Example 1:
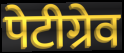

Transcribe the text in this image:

पेटीग्रेव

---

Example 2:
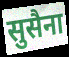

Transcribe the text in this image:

सुसैना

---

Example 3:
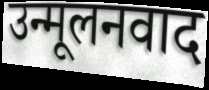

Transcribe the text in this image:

उन्मूलनवाद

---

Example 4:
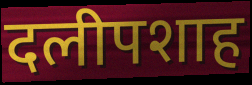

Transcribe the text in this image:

दलीपशाह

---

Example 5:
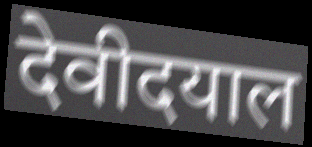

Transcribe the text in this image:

देवीदयाल